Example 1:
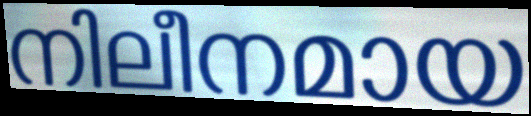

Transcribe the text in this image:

നിലീനമായ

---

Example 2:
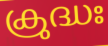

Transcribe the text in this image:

ക്രുദ്ധഃ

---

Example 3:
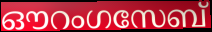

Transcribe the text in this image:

ഔറംഗസേബ്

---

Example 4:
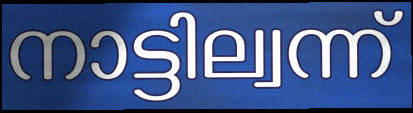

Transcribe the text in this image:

നാട്ടില്വന്ന്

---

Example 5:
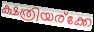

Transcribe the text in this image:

ക്ഷത്രിയര്ക്കേ